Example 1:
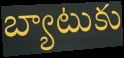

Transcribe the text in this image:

బ్యాటుకు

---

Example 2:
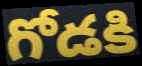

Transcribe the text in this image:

గోడకి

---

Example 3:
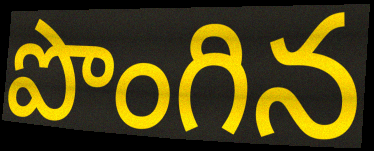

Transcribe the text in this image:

పొంగిన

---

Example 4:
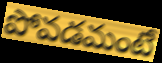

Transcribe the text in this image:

పోవడమంటే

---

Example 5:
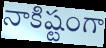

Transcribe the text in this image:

నాకిష్టంగా